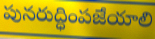
పునరుద్ధింపజేయాలి